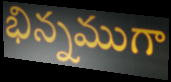
భిన్నముగా